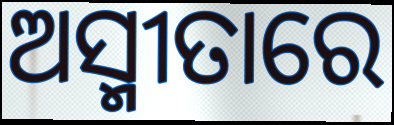
ଅସ୍ମୀତାରେ